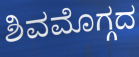
ಶಿವಮೊಗ್ಗದ